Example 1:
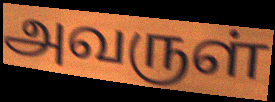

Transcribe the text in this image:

அவருள்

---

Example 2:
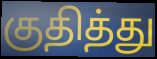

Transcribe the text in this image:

குதித்து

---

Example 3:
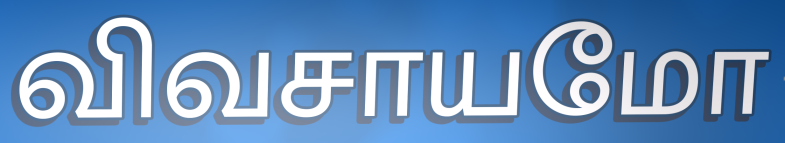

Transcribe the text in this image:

விவசாயமோ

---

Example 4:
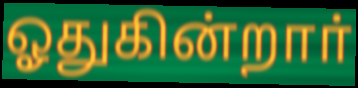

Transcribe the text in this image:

ஓதுகின்றார்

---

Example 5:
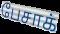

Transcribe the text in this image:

பேசாக்